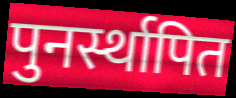
पुनर्स्थापित